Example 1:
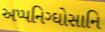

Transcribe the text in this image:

અપ્પનિગ્ઘોસાનિ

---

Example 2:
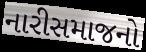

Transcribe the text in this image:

નારીસમાજનો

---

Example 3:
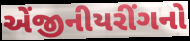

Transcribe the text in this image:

એંજીનીયરીંગનો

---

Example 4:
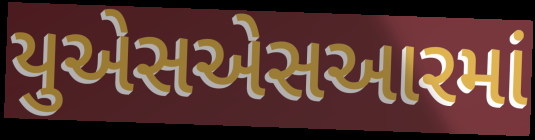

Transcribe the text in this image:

યુએસએસઆરમાં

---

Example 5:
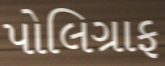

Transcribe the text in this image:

પોલિગ્રાફ